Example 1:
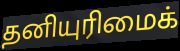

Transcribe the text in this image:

தனியுரிமைக்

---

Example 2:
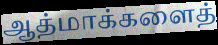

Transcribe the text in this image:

ஆத்மாக்களைத்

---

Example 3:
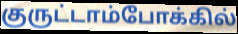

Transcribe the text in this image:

குருட்டாம்போக்கில்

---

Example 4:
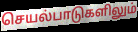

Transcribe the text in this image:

செயல்பாடுகளிலும்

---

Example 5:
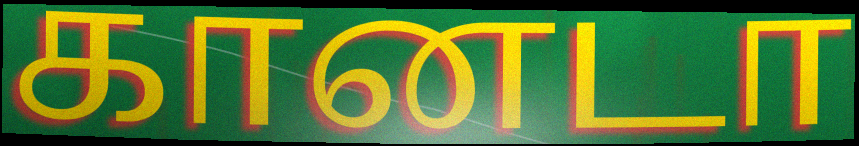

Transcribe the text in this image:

கானடா